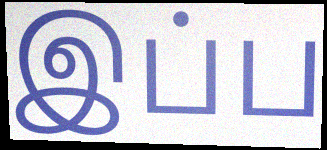
இப்ப